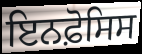
ਇਨਫ਼ੋਸਿਸ